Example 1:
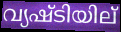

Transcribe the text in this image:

വ്യഷ്ടിയില്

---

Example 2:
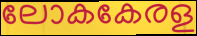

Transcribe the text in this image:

ലോകകേരള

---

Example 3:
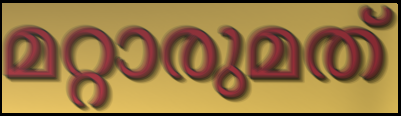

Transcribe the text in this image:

മറ്റാരുമത്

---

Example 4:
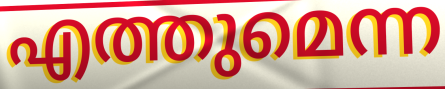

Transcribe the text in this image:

എത്തുമെന്ന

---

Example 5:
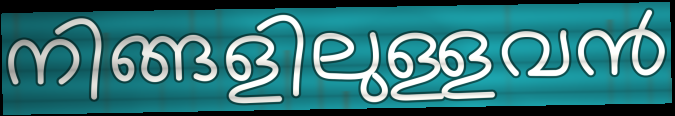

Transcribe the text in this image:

നിങ്ങളിലുള്ളവൻ